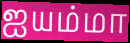
ஐயம்மா